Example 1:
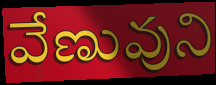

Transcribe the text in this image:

వేణువుని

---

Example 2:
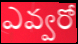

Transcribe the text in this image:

ఎవ్వరో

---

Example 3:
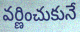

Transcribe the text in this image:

వర్ణించుకునే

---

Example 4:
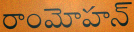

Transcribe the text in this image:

రాంమోహన్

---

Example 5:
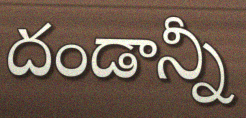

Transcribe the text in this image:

దండాన్నీ